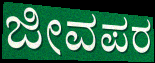
ಜೀವಪರ